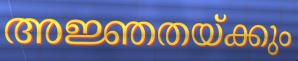
അജ്ഞതയ്ക്കും